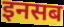
इनसब